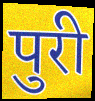
पुरी